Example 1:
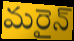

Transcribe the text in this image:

మరైన్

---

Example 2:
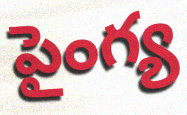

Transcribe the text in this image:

పైంగ్య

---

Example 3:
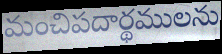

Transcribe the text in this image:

మంచిపదార్థములను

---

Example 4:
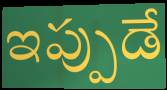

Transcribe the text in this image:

ఇప్పుడే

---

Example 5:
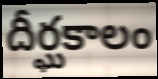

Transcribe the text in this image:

దీర్ఘకాలం